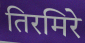
तिरमिरे